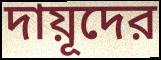
দায়ূদের